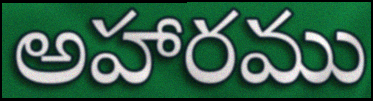
అహారము